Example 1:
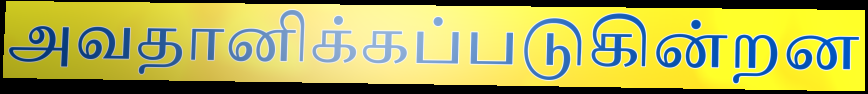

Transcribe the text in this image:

அவதானிக்கப்படுகின்றன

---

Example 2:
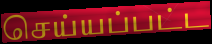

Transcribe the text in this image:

செய்யப்பட்ட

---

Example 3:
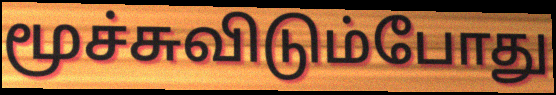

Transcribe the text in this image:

மூச்சுவிடும்போது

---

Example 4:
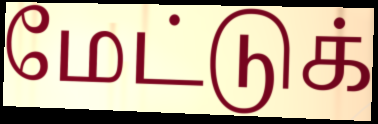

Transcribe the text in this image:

மேட்டுக்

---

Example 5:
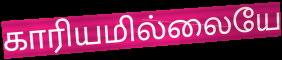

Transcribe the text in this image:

காரியமில்லையே